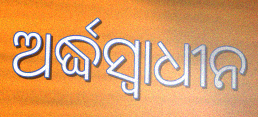
ଅର୍ଦ୍ଧସ୍ୱାଧୀନ